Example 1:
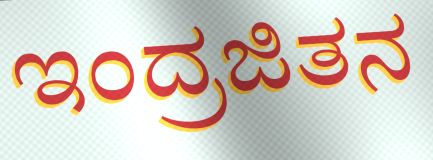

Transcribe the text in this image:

ಇಂದ್ರಜಿತನ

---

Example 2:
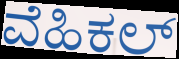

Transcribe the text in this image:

ವೆಹಿಕಲ್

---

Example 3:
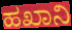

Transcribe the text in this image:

ಹಖಾನಿ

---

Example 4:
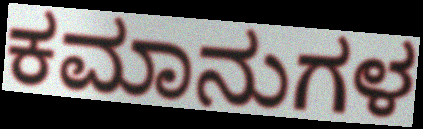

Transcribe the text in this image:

ಕಮಾನುಗಳ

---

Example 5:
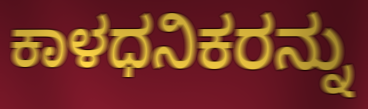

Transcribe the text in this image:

ಕಾಳಧನಿಕರನ್ನು